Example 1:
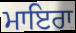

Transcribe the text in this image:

ਮਾਇਰਾ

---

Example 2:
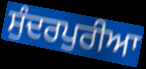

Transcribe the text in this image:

ਸੁੰਦਰਪੁਰੀਆ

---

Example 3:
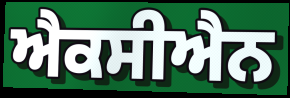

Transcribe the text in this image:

ਐਕਸੀਐਨ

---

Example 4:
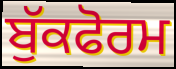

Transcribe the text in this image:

ਬੁੱਕਫੋਰਮ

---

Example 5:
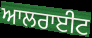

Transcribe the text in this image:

ਆਲਰਾਈਟ